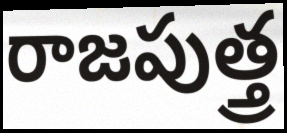
రాజపుత్త్ర